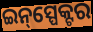
ଇନ୍‌ସ୍ପେକ୍ଟର